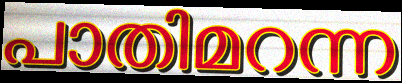
പാതിമറന്ന